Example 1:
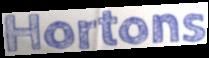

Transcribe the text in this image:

Hortons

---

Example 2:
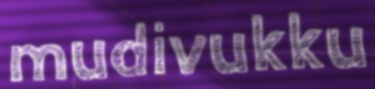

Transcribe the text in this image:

mudivukku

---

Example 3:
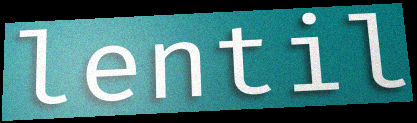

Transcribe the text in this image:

lentil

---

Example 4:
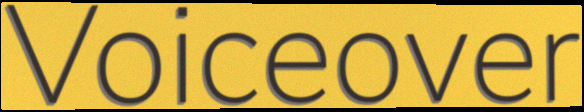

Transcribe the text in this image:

Voiceover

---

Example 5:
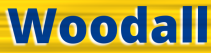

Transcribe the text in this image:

Woodall